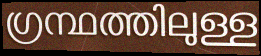
ഗ്രന്ഥത്തിലുള്ള